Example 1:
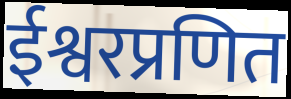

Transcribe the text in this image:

ईश्वरप्रणित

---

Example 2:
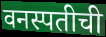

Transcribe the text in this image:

वनस्पतीची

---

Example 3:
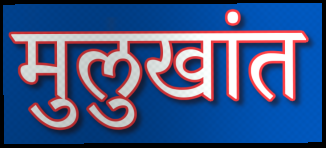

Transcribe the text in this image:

मुलुखांत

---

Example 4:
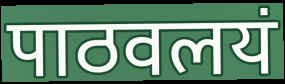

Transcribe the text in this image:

पाठवलयं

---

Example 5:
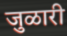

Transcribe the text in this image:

जुळारी